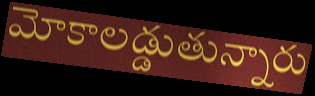
మోకాలడ్డుతున్నారు